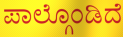
ಪಾಲ್ಗೊಂಡಿದೆ